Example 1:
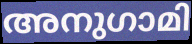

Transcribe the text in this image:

അനുഗാമി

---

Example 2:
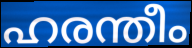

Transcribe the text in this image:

ഹരന്തീം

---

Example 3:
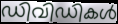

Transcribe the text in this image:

ഡിവിഡികൾ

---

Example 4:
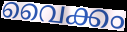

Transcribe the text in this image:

വൈക്കം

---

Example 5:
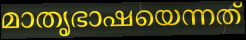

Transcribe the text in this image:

മാതൃഭാഷയെന്നത്